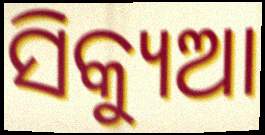
ସିକ୍ୟୁଆ